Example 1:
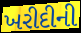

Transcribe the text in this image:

ખરીદીની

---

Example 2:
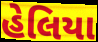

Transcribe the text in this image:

હેલિયા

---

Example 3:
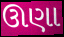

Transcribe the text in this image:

ઊણા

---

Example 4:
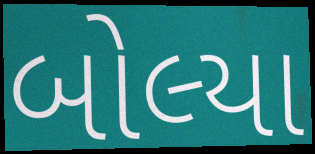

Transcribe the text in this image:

બોલ્યા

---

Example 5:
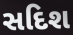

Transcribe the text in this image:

સદિશ